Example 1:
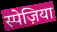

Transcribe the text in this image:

स्पेज़िया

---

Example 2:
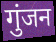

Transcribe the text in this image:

गुंजन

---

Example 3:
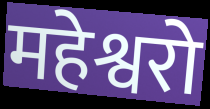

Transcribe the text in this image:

महेश्वरो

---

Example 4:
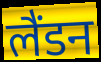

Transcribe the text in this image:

लैंडन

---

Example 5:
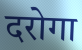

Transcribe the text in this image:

दरोगा